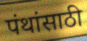
पंथांसाठी